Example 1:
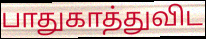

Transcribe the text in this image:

பாதுகாத்துவிட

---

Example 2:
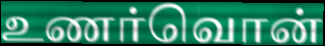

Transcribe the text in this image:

உணர்வொன்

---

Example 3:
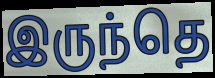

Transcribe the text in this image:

இருந்தெ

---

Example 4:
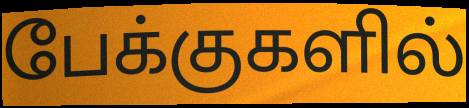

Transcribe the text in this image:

பேக்குகளில்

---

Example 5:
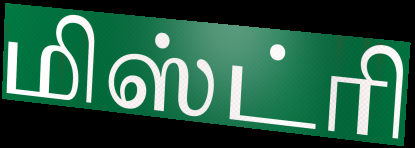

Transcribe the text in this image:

மிஸ்ட்ரி